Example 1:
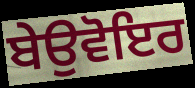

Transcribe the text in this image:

ਬੇਉਵੋਇਰ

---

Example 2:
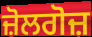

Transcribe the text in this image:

ਜ਼ੋਲਗੋਜ਼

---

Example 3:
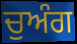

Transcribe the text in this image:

ਚੁਅੰਗ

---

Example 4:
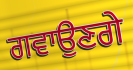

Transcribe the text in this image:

ਗਵਾਉਣਗੇ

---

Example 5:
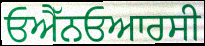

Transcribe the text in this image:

ਓਐੱਨਓਆਰਸੀ